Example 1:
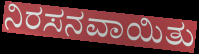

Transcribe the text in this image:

ನಿರಸನವಾಯಿತು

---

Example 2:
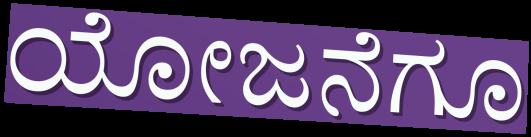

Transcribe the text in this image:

ಯೋಜನೆಗೂ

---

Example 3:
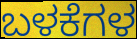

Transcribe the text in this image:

ಬಳಕೆಗಳ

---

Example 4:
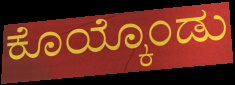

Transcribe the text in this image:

ಕೊಯ್ಕೊಂಡು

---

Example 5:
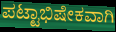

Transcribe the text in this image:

ಪಟ್ಟಾಭಿಷೇಕವಾಗಿ